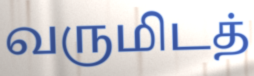
வருமிடத்